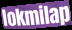
lokmilap